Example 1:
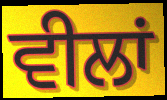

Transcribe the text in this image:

ਵੀਲਾਂ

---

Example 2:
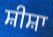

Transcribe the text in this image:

ਸ਼ੀਸ਼ਾ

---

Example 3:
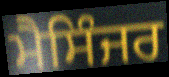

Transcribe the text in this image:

ਮੈਸਿੰਜਰ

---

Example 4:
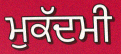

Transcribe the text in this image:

ਮੁਕੱਦਮੀ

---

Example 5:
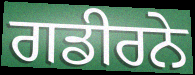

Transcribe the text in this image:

ਗਡੀਰਨੇ